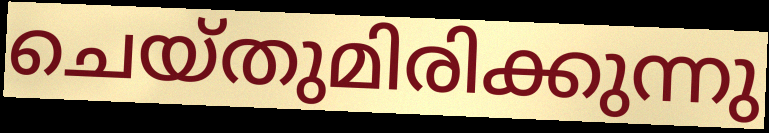
ചെയ്തുമിരിക്കുന്നു